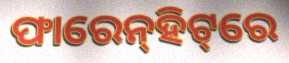
ଫାରେନ୍‌ହିଟ୍‌ରେ